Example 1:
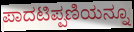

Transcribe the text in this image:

ಪಾದಟಿಪ್ಪಣಿಯನ್ನೂ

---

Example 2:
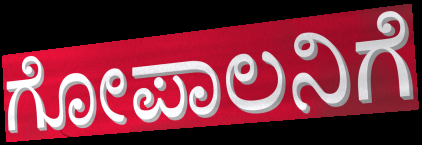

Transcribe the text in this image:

ಗೋಪಾಲನಿಗೆ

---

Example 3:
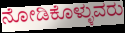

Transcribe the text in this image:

ನೋಡಿಕೊಳ್ಳುವರು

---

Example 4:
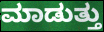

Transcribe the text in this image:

ಮಾಡುತ್ತು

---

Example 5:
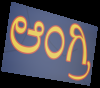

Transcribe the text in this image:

ಆಂಗ್ರಿ